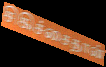
சிகிச்சைதான்